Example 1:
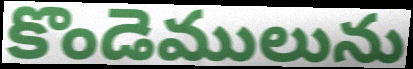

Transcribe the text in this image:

కొండెములును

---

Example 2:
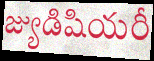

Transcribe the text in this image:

జ్యుడిషియరీ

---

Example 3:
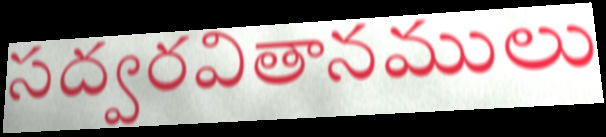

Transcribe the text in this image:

సద్వరవితానములు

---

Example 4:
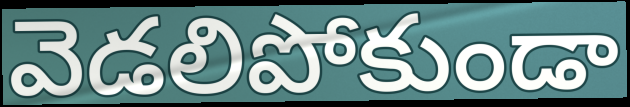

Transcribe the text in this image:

వెడలిపోకుండా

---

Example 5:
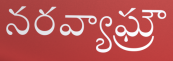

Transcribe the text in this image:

నరవ్యాఘ్రౌ